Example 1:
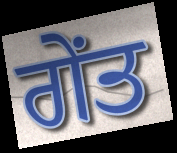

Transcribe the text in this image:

ਗੇਂਤ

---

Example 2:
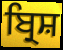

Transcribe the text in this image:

ਬ੍ਰਿਸ਼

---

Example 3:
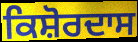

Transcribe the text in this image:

ਕਿਸ਼ੋਰਦਾਸ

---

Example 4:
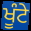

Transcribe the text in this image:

ਖੂੰਟੇ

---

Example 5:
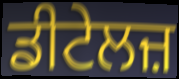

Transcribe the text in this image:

ਡੀਟੇਲਜ਼